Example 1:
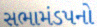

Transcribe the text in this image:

સભામંડપનો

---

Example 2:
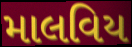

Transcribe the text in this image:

માલવિય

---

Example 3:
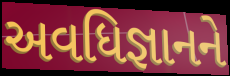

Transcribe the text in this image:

અવધિજ્ઞાનને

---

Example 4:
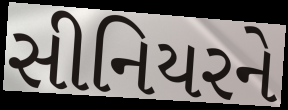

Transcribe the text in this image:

સીનિયરને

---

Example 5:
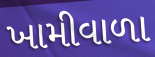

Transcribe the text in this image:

ખામીવાળા